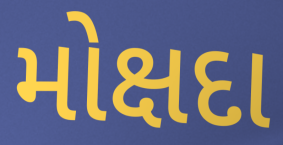
મોક્ષદા